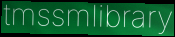
tmssmlibrary